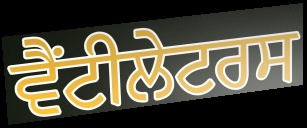
ਵੈਂਟੀਲੇਟਰਸ